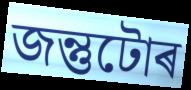
জন্তুটোৰ